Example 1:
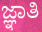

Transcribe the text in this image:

ಜ್ಞಾತಿ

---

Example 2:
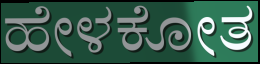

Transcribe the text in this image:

ಹೇಳಕೋತ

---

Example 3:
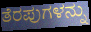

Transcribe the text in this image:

ತೆರಪುಗಳನ್ನು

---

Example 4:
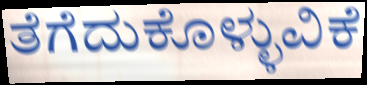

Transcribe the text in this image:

ತೆಗೆದುಕೊಳ್ಳುವಿಕೆ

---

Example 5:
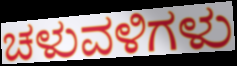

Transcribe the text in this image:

ಚಳುವಳಿಗಳು